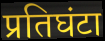
प्रतिघंटा